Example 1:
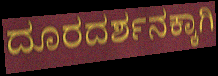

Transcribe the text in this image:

ದೂರದರ್ಶನಕ್ಕಾಗಿ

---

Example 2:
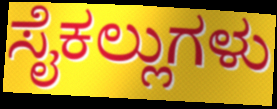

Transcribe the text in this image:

ಸೈಕಲ್ಲುಗಳು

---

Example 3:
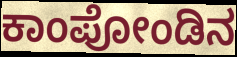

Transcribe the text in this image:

ಕಾಂಪೋಂಡಿನ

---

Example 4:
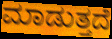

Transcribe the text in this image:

ಮಾಡುತ್ತದೆ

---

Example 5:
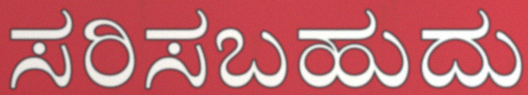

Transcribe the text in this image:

ಸರಿಸಬಹುದು